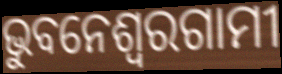
ଭୁବନେଶ୍ୱରଗାମୀ